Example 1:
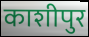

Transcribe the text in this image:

काशीपुर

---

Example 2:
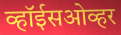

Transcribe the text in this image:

व्हॉईसओव्हर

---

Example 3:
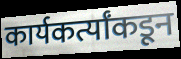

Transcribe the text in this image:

कार्यकर्त्यांकडून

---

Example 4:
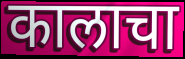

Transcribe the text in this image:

कालाचा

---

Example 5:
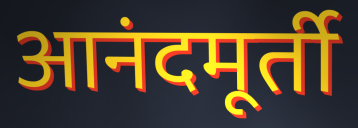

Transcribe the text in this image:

आनंदमूर्ती